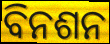
ବିନଶନ